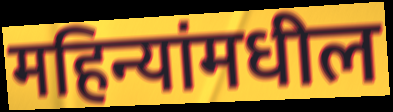
महिन्यांमधील